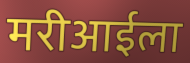
मरीआईला